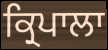
ਕ੍ਰਿਪਾਲਾ